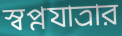
স্বপ্নযাত্রার